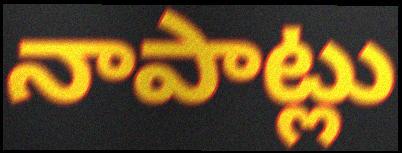
నాపాట్లు